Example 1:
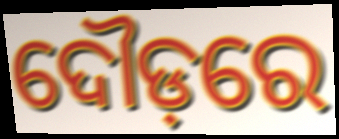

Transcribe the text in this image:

ଦୌଡ଼ରେ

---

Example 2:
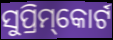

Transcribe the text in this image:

ସୁପ୍ରିମ୍‌କୋର୍ଟ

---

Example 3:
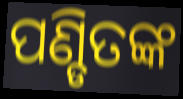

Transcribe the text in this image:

ପଣ୍ଡିତଙ୍କ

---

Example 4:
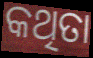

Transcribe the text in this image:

କଥିତା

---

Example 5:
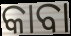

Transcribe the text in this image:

କାବା